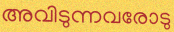
അവിടുന്നവരോടു